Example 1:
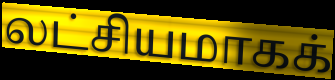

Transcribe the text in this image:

லட்சியமாகக்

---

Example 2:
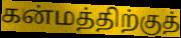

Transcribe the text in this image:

கன்மத்திற்குத்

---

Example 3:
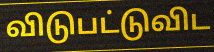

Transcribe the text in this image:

விடுபட்டுவிட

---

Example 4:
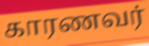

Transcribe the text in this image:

காரணவர்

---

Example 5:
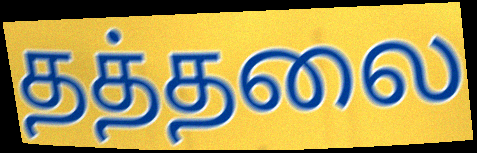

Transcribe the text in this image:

தத்தலை